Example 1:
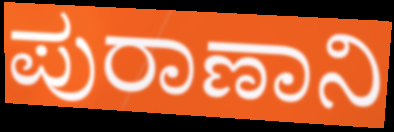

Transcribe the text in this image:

ಪುರಾಣಾನಿ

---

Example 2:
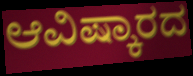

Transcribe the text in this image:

ಆವಿಷ್ಕಾರದ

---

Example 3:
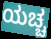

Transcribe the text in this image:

ಯಚ್ಚ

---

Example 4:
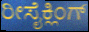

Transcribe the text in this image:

ರೀಸೈಕ್ಲಿಂಗ್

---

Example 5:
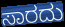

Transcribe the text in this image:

ಸಾರದು